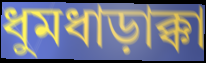
ধুমধাড়াক্কা